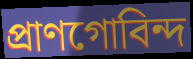
প্রাণগোবিন্দ